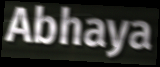
Abhaya